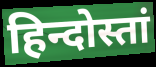
हिन्दोस्तां